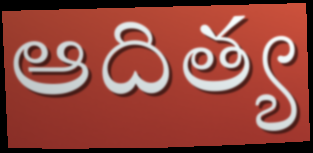
ఆదిత్య